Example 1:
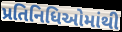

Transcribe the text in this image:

પ્રતિનિધિઓમાંથી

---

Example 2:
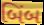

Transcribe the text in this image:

બિંબ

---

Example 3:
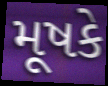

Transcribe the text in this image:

મૂષકે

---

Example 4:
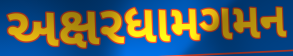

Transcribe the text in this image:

અક્ષરધામગમન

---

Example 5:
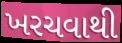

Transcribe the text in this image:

ખરચવાથી